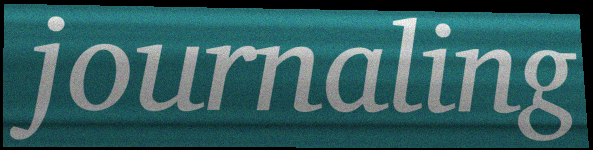
journaling